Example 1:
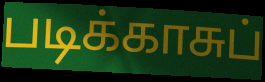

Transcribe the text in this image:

படிக்காசுப்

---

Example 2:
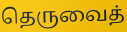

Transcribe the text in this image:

தெருவைத்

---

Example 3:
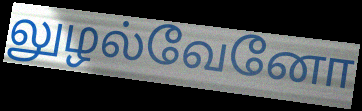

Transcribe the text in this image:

லுழல்வேனோ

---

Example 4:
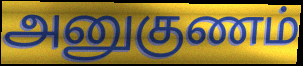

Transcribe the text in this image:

அனுகுணம்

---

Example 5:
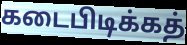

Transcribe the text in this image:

கடைபிடிக்கத்